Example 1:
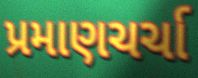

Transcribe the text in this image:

પ્રમાણચર્ચા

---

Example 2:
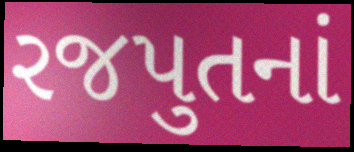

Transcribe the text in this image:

રજપુતનાં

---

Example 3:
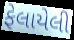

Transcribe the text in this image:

ફેલાયેલી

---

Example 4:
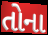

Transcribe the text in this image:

તોના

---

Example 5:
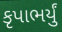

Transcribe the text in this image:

કૃપાભર્યું